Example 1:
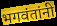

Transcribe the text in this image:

भगवंतांनी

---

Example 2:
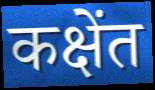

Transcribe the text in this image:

कक्षेंत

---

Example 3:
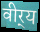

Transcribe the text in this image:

वीर्य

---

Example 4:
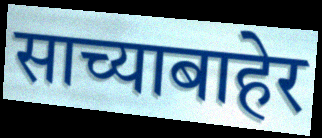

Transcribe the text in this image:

साच्याबाहेर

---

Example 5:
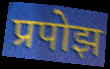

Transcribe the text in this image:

प्रपोझ